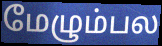
மேழும்பல